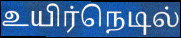
உயிர்நெடில்